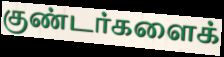
குண்டர்களைக்